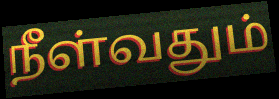
நீள்வதும்